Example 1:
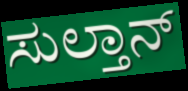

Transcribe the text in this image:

ಸುಲ್ತಾನ್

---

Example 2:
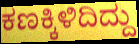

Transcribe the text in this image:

ಕಣಕ್ಕಿಳಿದಿದ್ದು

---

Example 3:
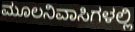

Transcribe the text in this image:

ಮೂಲನಿವಾಸಿಗಳಲ್ಲಿ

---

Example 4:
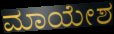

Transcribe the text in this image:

ಮಾಯೇಶ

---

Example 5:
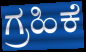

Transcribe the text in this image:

ಗ್ರಹಿಕೆ